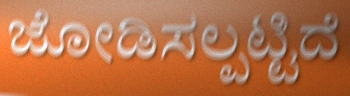
ಜೋಡಿಸಲ್ಪಟ್ಟಿದೆ